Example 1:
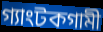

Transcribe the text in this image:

গ্যাংটকগামী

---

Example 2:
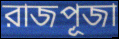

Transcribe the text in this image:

রাজপূজা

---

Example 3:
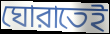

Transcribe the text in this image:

ঘোরাতেই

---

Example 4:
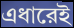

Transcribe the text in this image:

এধারেই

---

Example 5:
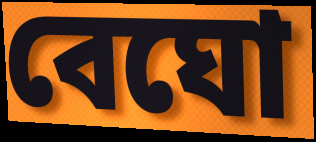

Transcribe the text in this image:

বেঘো